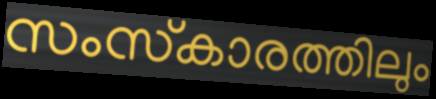
സംസ്‌കാരത്തിലും